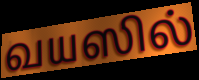
வயஸில்